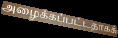
அழைக்கப்பட்டதாகக்